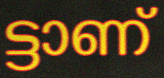
ട്ടാണ്